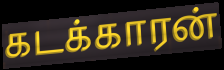
கடக்காரன்